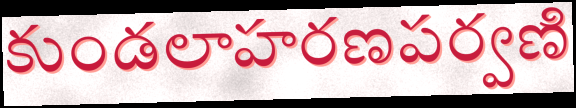
కుండలాహరణపర్వణి